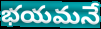
భయమనే